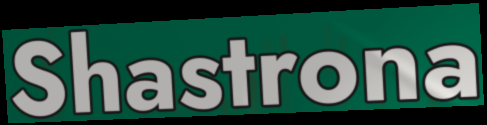
Shastrona